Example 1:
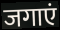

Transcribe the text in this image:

जगाएं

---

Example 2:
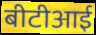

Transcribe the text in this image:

बीटीआई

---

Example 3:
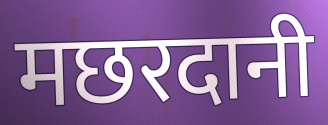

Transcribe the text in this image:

मछरदानी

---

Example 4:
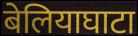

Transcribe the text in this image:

बेलियाघाटा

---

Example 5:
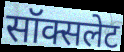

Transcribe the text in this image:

सॉक्सलेट